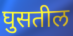
घुसतील